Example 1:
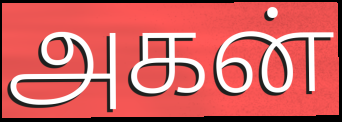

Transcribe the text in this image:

அகன்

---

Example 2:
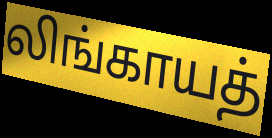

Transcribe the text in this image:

லிங்காயத்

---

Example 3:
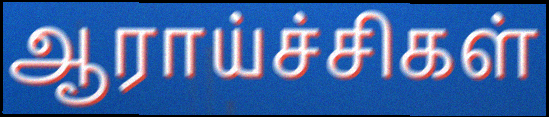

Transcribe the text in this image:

ஆராய்ச்சிகள்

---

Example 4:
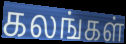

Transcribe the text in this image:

கலங்கள்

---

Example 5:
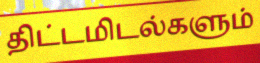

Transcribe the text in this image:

திட்டமிடல்களும்